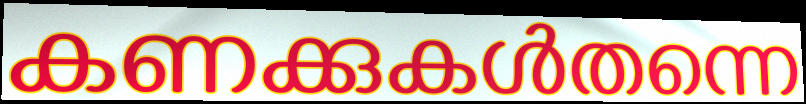
കണക്കുകൾതന്നെ